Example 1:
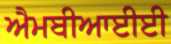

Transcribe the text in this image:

ਐਮਬੀਆਈਈ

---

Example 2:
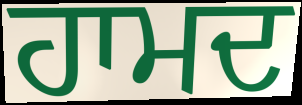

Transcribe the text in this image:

ਹਾਮਦ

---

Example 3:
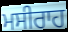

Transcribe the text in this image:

ਮਸੀਰਾਹ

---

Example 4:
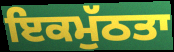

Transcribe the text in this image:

ਇਕਮੁੱਠਤਾ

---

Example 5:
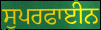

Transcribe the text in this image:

ਸੁਪਰਫਾਈਨ